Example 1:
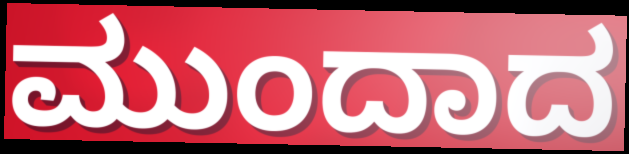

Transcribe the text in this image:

ಮುಂದಾದ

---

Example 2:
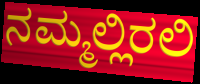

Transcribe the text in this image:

ನಮ್ಮಲ್ಲಿರಲಿ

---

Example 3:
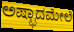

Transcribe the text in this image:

ಅಷ್ಟಾದಮೇಲೆ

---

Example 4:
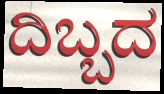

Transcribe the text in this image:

ದಿಬ್ಬದ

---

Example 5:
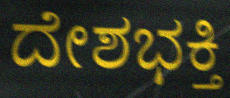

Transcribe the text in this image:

ದೇಶಭಕ್ತಿ